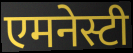
एमनेस्टी